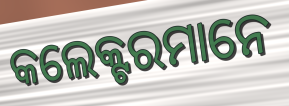
କଲେକ୍ଟରମାନେ